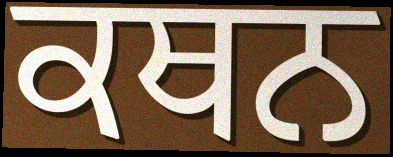
ਕਥਨ